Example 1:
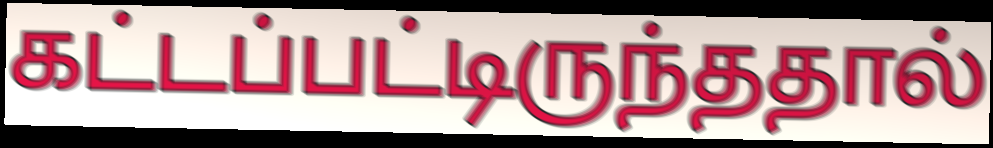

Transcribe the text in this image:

கட்டப்பட்டிருந்ததால்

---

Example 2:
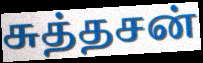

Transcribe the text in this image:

சுத்தசன்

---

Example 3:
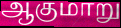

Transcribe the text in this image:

ஆகுமாறு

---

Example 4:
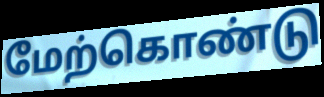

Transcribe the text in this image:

மேற்கொண்டு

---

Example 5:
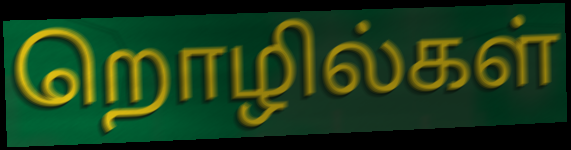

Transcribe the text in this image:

றொழில்கள்